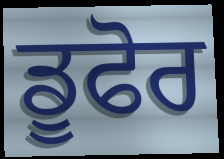
ਡੂਫੋਰ